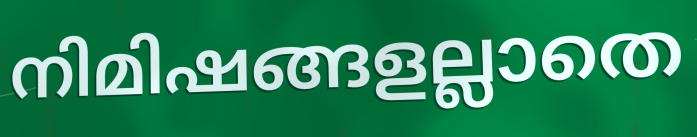
നിമിഷങ്ങളല്ലാതെ